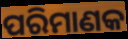
ପରିମାଣକ